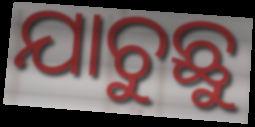
ଯାଚୁଛୁ